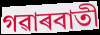
গৱাৰবাতী